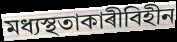
মধ্যস্থতাকাৰীবিহীন